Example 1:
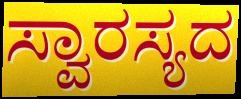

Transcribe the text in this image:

ಸ್ವಾರಸ್ಯದ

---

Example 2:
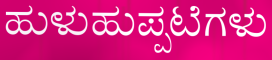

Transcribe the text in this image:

ಹುಳುಹುಪ್ಪಟೆಗಳು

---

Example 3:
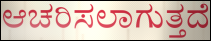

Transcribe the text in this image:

ಆಚರಿಸಲಾಗುತ್ತದೆ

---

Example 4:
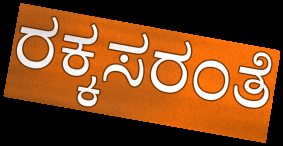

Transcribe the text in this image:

ರಕ್ಕಸರಂತೆ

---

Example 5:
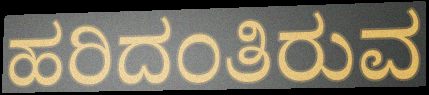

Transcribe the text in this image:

ಹರಿದಂತಿರುವ